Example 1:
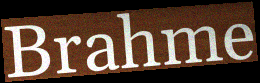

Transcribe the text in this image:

Brahme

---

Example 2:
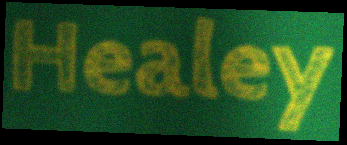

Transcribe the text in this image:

Healey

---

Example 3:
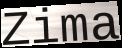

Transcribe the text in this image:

Zima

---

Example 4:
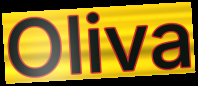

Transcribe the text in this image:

Oliva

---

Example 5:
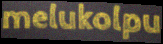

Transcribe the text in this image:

melukolpu